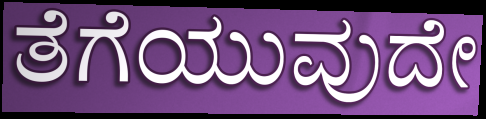
ತೆಗೆಯುವುದೇ